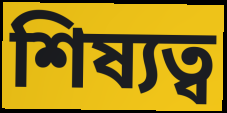
শিষ্যত্ব